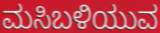
ಮಸಿಬಳಿಯುವ